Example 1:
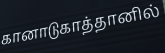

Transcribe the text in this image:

கானாடுகாத்தானில்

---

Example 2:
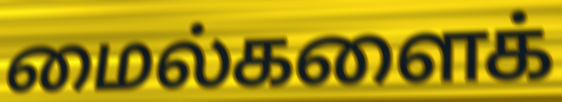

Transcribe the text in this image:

மைல்களைக்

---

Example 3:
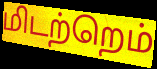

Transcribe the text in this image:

மிடற்றெம்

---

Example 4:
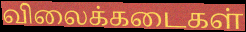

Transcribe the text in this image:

விலைக்கடைகள்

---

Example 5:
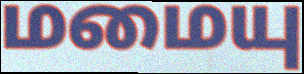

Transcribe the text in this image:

மமையு